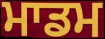
ਮਾਡਮ